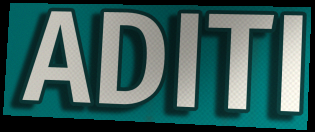
ADITI